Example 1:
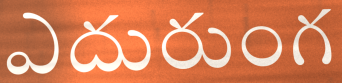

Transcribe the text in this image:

ఎదురుంగ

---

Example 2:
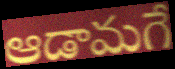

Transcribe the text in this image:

ఆడామగే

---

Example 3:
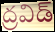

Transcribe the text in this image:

ద్రవిడ్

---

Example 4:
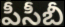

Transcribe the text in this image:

పీసీబీ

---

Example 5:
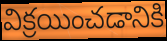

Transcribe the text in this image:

విక్రయించడానికి